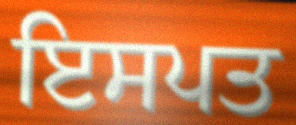
ਇਸਪਤ